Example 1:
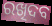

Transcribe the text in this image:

ରଖିଦବ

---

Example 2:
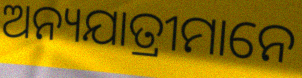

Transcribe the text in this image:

ଅନ୍ୟଯାତ୍ରୀମାନେ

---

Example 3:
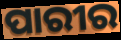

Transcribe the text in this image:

ପାରୀର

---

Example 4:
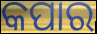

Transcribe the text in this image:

କପାର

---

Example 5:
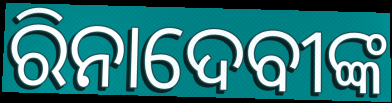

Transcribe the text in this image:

ରିନାଦେବୀଙ୍କ